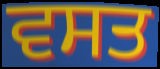
ਵਸਤ